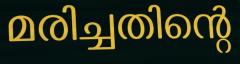
മരിച്ചതിന്റെ